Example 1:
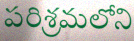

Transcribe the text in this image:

పరిశ్రమలోని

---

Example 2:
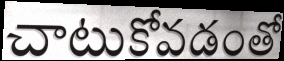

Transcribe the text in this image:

చాటుకోవడంతో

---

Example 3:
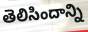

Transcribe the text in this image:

తెలిసిందాన్ని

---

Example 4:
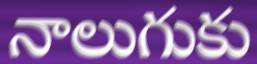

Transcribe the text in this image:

నాలుగుకు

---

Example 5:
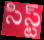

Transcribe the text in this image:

సిస్ట్